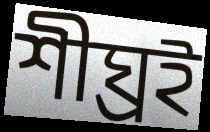
শীঘ্রই